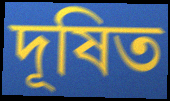
দূষিত